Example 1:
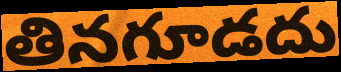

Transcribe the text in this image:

తినగూడదు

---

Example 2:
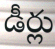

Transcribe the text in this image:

డీర్లు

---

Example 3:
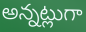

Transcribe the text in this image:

అన్నట్లుగా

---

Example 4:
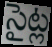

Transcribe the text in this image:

సైట్ల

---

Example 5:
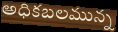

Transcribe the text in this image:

అధికబలమున్న